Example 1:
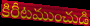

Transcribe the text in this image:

కిరీటముంచుడి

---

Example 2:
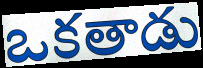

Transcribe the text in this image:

ఒకతాడు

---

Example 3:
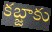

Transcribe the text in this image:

కబ్జాకు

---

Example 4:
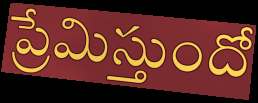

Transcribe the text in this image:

ప్రేమిస్తుందో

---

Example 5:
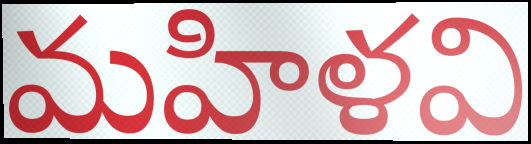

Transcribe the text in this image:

మహిళవి